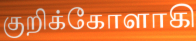
குறிக்கோளாகி